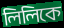
লিলিকে